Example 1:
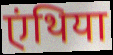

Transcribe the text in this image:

एंथिया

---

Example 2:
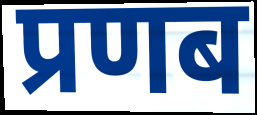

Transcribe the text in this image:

प्रणब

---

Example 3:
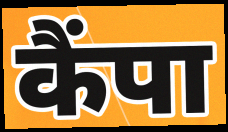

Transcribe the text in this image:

कैंपा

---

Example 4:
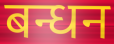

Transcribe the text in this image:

बन्धन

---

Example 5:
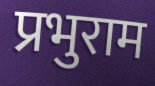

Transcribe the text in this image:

प्रभुराम